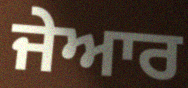
ਜੇਆਰ